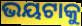
ଭୟଟାକୁ